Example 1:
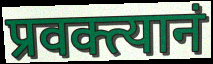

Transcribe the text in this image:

प्रवक्त्यानं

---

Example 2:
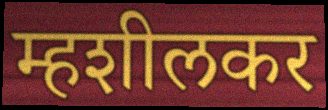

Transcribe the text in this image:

म्हशीलकर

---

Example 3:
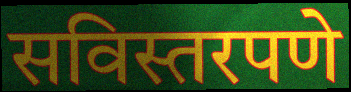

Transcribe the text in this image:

सविस्तरपणे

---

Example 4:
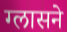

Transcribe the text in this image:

ग्लासने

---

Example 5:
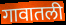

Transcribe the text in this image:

गावातली